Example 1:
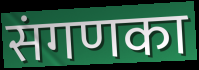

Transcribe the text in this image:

संगणका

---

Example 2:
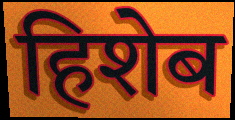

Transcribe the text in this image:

हिशेब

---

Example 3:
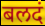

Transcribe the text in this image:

बलदं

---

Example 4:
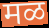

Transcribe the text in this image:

मळ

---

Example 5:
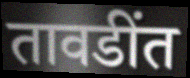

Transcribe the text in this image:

तावडींत